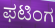
ಫಟಿಂಗ